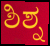
ಶಿಶ್ನ